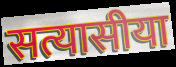
सत्यासीया